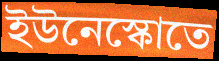
ইউনেস্কোতে